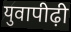
युवापीढ़ी